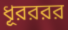
ধূরররর